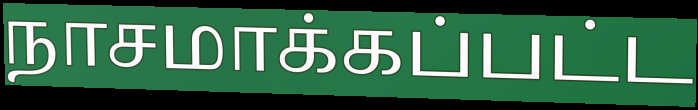
நாசமாக்கப்பட்ட